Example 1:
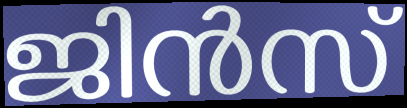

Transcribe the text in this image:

ജിൻസ്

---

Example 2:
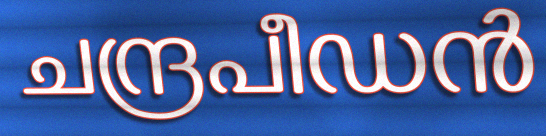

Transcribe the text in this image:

ചന്ദ്രപീഡൻ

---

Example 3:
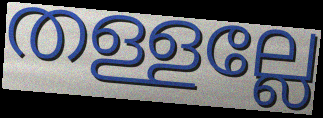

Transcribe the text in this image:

തള്ളല്ലേ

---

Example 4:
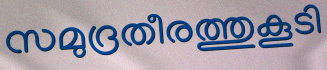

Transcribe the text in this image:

സമുദ്രതീരത്തുകൂടി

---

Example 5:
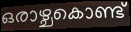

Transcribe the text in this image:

ഒരാഴ്ചകൊണ്ട്